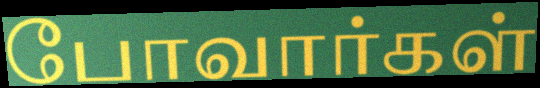
போவார்கள்